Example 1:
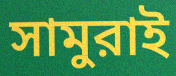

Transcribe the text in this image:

সামুরাই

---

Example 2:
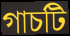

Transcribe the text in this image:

গাচটি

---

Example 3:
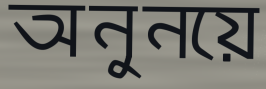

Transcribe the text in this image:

অনুনয়ে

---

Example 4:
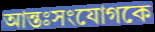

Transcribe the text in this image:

আন্তঃসংযোগকে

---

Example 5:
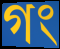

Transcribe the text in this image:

গং